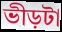
ভীড়টা